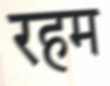
रहम